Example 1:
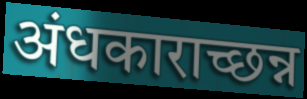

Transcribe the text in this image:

अंधकाराच्छन्न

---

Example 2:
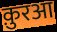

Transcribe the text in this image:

क़ुरआ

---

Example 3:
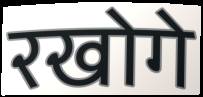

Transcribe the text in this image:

रखोगे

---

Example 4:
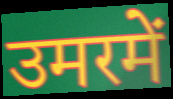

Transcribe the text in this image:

उमरमें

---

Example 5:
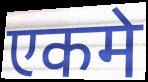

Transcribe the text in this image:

एकमे